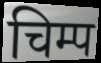
चिम्प